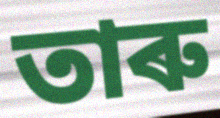
তাৰু